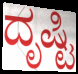
ದೃಷ್ಟಿ